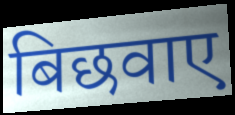
बिछवाए